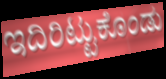
ಇದಿರಿಟ್ಟುಕೊಂಡು